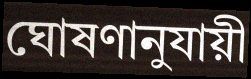
ঘোষণানুযায়ী